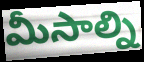
మీసాల్ని